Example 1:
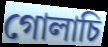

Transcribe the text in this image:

গোলাচি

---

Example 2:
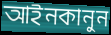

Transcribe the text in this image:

আইনকানুন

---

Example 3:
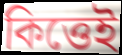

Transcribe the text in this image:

কিত্তেই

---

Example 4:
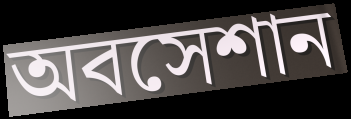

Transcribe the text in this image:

অবসেশান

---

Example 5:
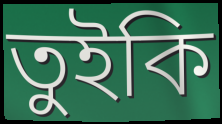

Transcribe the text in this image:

তুইকি